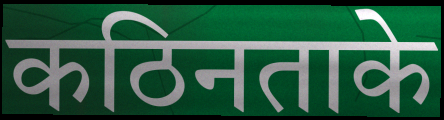
कठिनताके